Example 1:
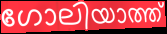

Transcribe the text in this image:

ഗോലിയാത്ത്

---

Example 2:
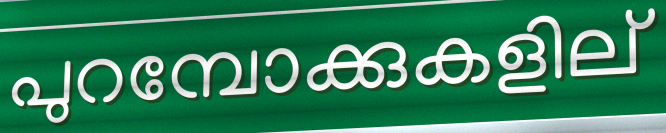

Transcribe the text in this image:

പുറമ്പോക്കുകളില്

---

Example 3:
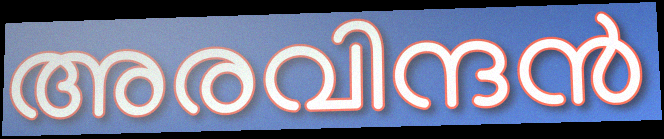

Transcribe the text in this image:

അരവിന്ദൻ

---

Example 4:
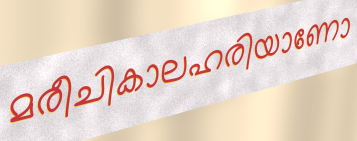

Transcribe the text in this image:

മരീചികാലഹരിയാണോ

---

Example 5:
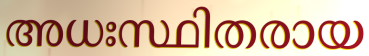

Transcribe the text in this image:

അധഃസ്ഥിതരായ